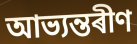
আভ্যন্তৰীণ